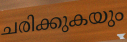
ചരിക്കുകയും